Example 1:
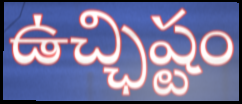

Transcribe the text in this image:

ఉచ్ఛిష్టం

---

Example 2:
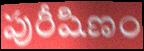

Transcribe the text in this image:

పురీషిణం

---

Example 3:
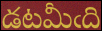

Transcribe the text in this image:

డటమీఁది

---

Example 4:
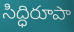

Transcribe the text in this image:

సిద్ధిరూపా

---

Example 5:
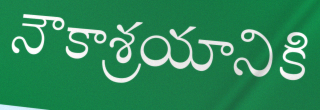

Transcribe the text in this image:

నౌకాశ్రయానికి